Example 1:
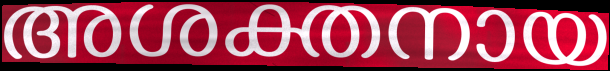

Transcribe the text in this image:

അശക്തനായ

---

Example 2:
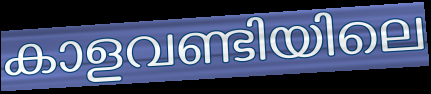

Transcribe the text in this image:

കാളവണ്ടിയിലെ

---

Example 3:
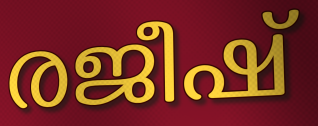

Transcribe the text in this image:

രജീഷ്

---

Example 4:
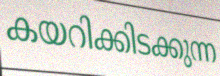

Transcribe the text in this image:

കയറിക്കിടക്കുന്ന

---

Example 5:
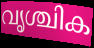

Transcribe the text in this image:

വൃശ്ചിക